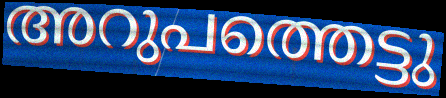
അറുപത്തെട്ടു